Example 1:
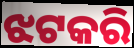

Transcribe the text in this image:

ଝଟକରି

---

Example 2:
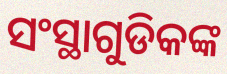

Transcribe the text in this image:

ସଂସ୍ଥାଗୁଡିକଙ୍କ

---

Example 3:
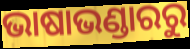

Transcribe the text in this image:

ଭାଷାଭଣ୍ଡାରରୁ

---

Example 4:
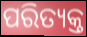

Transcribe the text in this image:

ପରିତ୍ଯକ୍ତ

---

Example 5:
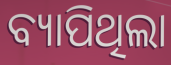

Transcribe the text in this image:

ବ୍ୟାପିଥିଲା